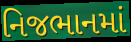
નિજભાનમાં